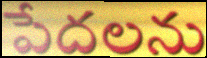
పేదలను